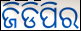
ଜିଡିପିର